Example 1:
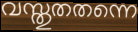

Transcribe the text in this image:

വസ്തുതതന്നെ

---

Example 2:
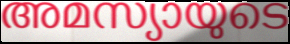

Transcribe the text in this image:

അമസ്യായുടെ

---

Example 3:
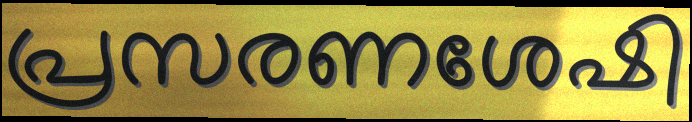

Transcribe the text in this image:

പ്രസരണശേഷി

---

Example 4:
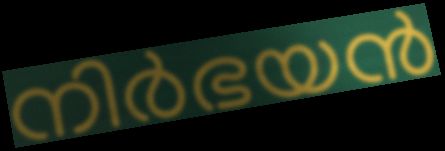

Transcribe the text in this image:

നിർഭയൻ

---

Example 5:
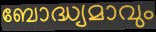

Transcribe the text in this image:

ബോദ്ധ്യമാവും